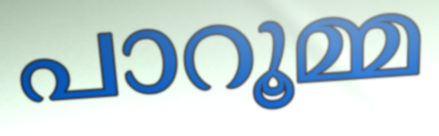
പാറൂമ്മ